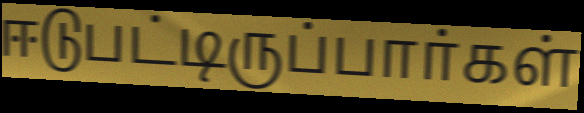
ஈடுபட்டிருப்பார்கள்